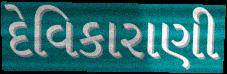
દેવિકારાણી